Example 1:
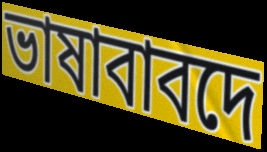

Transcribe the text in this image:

ভাষাবাবদে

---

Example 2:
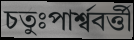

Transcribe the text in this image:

চতুঃপার্শ্ববর্ত্তী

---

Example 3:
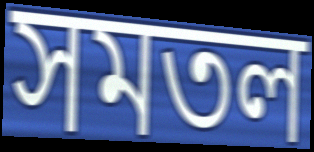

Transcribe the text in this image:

সমতল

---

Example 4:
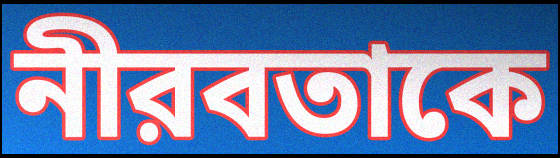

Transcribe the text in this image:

নীরবতাকে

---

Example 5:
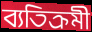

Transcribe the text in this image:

ব্যতিক্রমী